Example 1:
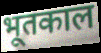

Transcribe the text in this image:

भूतकाल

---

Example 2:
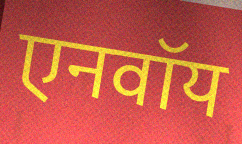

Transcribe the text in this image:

एनवॉय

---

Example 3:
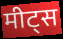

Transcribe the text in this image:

मीट्स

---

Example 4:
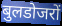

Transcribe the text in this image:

बुलडोजरों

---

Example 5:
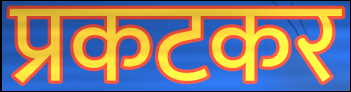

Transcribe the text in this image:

प्रकटकर